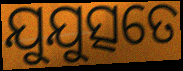
ଯୁଯୁତ୍ସତେ